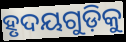
ହୃଦୟଗୁଡ଼ିକୁ